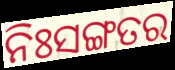
ନିଃସଙ୍ଗତର